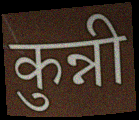
कुन्नी